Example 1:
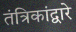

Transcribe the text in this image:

तंत्रिकांद्वारे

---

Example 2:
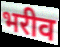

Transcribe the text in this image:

भरीव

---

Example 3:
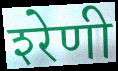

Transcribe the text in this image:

श्रेणी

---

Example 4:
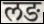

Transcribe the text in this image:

लङ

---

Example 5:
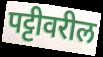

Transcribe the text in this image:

पट्टीवरील